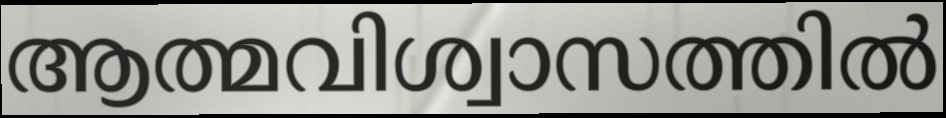
ആത്മവിശ്വാസത്തിൽ